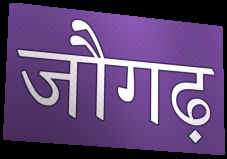
जौगढ़